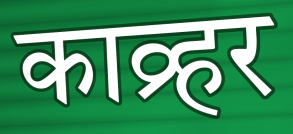
काव्र्हर